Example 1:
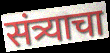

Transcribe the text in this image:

संत्र्याचा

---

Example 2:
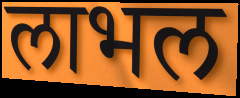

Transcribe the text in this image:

लाभल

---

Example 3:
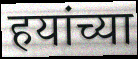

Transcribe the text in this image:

हयांच्या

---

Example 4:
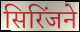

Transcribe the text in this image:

सिरिंजने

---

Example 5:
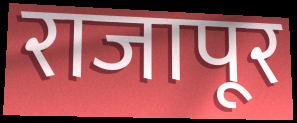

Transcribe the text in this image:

राजापूर